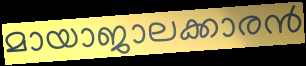
മായാജാലക്കാരൻ